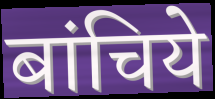
बांचिये